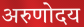
अरुणोदय